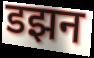
डझन